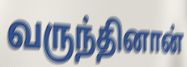
வருந்தினான்